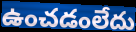
ఉంచడంలేదు